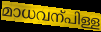
മാധവന്പിള്ള